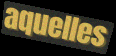
aquelles